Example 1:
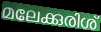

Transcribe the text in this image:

മലേക്കുരിശ്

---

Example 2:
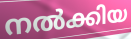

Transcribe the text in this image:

നൽക്കിയ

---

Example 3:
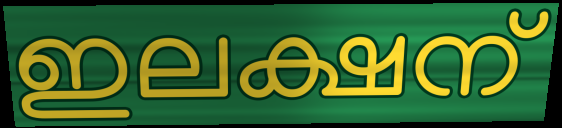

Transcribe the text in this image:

ഇലക്ഷന്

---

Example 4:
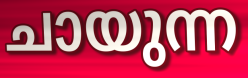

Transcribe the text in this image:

ചായുന്ന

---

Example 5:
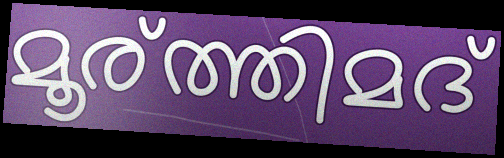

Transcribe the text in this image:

മൂര്ത്തിമദ്